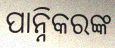
ପାନ୍ନିକରଙ୍କ